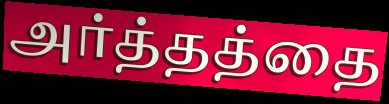
அர்த்தத்தை